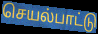
செயல்பாட்டு